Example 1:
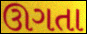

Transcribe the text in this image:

ઊગતા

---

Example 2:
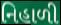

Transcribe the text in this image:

નિહાળી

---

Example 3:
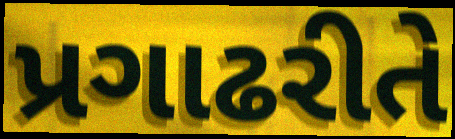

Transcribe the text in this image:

પ્રગાઢરીતે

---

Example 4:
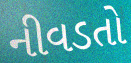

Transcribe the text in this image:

નીવડતો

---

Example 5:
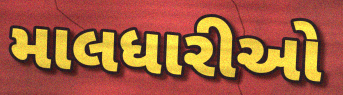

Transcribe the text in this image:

માલધારીઓ